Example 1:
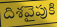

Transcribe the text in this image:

దిశవైపుకి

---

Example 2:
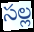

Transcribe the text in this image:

సల్ల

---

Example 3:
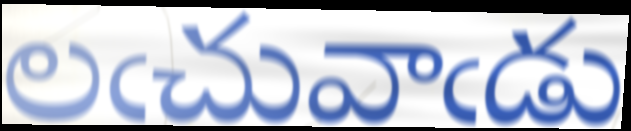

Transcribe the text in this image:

లఁచువాఁడు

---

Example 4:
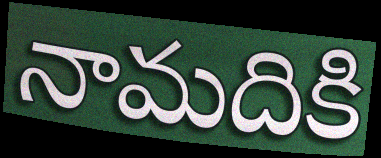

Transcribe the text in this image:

నామదికి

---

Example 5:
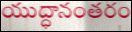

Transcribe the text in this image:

యుద్ధానంతరం